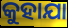
କୁହାଯା